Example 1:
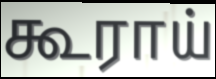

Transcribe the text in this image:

கூராய்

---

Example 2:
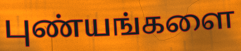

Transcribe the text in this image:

புண்யங்களை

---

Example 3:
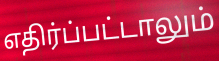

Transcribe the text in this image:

எதிர்ப்பட்டாலும்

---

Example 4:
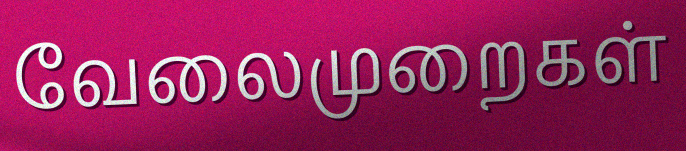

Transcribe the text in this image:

வேலைமுறைகள்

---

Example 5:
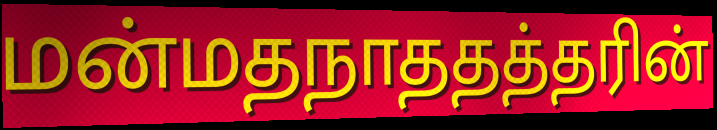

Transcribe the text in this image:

மன்மதநாததத்தரின்